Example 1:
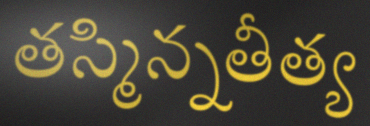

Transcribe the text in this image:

తస్మిన్నతీత్య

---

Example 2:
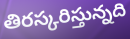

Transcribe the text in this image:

తిరస్కరిస్తున్నది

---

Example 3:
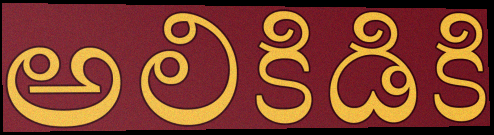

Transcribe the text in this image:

అలికిడికి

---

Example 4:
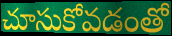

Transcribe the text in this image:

చూసుకోవడంతో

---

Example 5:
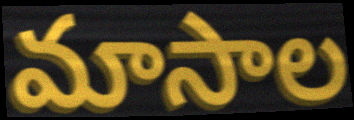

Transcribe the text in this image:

మాసాల